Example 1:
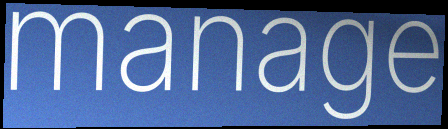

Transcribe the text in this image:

manage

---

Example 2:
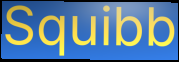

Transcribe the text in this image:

Squibb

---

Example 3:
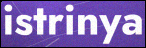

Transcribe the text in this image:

istrinya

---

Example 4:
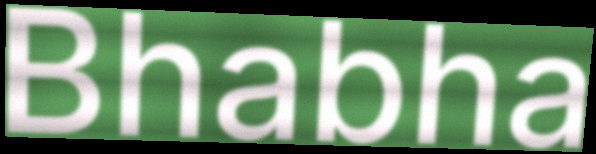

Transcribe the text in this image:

Bhabha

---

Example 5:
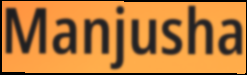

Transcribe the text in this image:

Manjusha